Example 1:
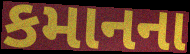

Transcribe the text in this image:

કમાનના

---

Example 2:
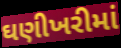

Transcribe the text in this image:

ઘણીખરીમાં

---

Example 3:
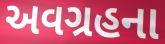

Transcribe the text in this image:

અવગ્રહના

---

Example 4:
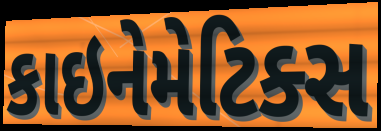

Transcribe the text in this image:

કાઇનેમેટિક્સ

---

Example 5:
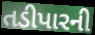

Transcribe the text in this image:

તડીપારની